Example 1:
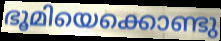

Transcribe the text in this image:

ഭൂമിയെക്കൊണ്ടു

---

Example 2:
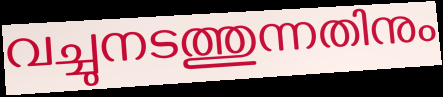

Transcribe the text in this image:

വച്ചുനടത്തുന്നതിനും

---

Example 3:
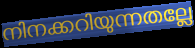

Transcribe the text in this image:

നിനക്കറിയുന്നതല്ലേ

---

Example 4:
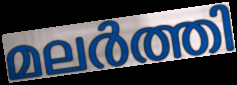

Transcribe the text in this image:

മലർത്തി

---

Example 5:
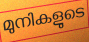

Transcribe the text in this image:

മുനികളുടെ